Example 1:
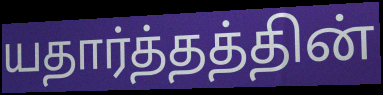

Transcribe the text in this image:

யதார்த்தத்தின்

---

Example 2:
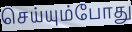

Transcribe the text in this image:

செய்யும்போது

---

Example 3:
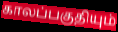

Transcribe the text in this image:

காலப்பகுதியும்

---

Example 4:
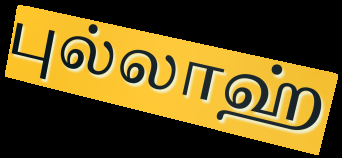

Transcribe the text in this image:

புல்லாஹ்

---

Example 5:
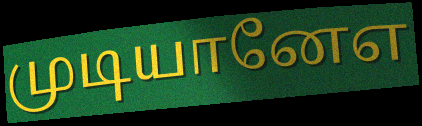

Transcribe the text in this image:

முடியானேஎ